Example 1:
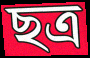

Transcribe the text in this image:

ছত্র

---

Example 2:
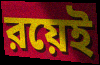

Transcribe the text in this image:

রয়েই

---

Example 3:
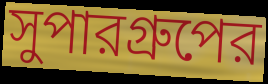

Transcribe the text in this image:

সুপারগ্রুপের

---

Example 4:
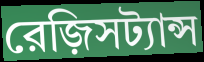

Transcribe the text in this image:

রেজ়িসট্যান্স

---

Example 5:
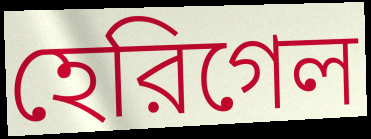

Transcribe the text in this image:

হেরিগেল